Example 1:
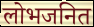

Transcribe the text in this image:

लोभजनित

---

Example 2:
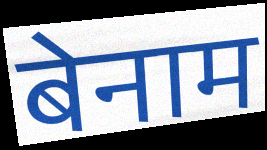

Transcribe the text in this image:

बेनाम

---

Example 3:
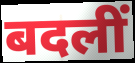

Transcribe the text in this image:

बदलीं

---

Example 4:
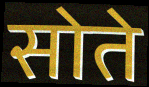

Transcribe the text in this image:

सोते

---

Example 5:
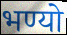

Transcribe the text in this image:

भण्यो